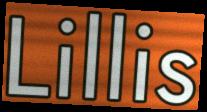
Lillis